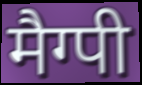
मैग्पी